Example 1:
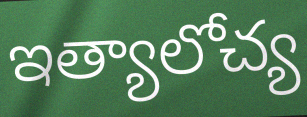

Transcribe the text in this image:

ఇత్యాలోచ్య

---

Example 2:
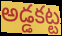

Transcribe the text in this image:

అడ్డకట్ట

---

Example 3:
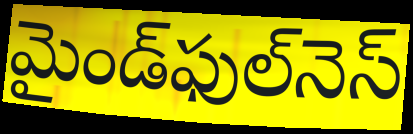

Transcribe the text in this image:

మైండ్‌ఫుల్‌నెస్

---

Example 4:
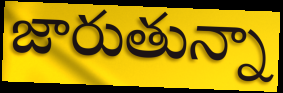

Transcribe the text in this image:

జారుతున్నా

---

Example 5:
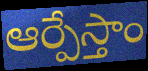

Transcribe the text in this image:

ఆర్పేస్తాం